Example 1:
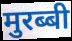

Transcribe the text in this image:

मुरब्बी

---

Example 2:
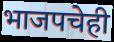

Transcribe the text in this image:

भाजपचेही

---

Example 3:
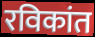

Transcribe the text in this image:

रविकांत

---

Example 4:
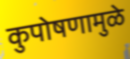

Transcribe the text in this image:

कुपोषणामुळे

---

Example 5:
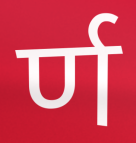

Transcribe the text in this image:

र्ण